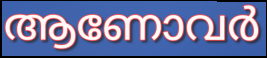
ആണോവർ